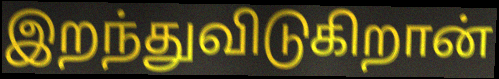
இறந்துவிடுகிறான்